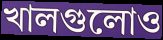
খালগুলোও